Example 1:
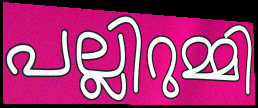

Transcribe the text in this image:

പല്ലിറുമ്മി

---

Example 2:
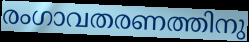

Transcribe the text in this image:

രംഗാവതരണത്തിനു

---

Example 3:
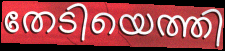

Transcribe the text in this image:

തേടിയെത്തി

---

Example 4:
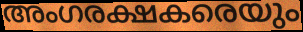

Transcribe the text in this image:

അംഗരക്ഷകരെയും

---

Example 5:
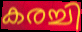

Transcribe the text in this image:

കരച്ചി